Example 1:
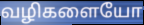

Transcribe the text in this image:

வழிகளையோ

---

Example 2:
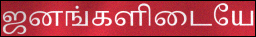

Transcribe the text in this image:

ஜனங்களிடையே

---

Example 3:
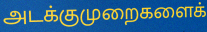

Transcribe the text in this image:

அடக்குமுறைகளைக்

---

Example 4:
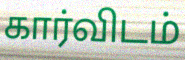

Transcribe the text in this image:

கார்விடம்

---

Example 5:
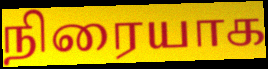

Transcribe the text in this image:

நிரையாக